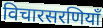
विचारसरणियाँ